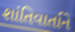
શાંતિવાર્તાને